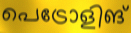
പെട്രോളിങ്